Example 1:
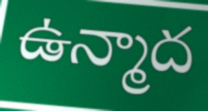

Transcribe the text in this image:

ఉన్మాద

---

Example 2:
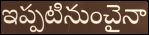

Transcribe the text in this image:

ఇప్పటినుంచైనా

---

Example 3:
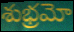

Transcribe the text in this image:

శుభ్రమో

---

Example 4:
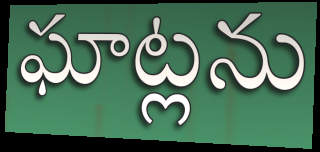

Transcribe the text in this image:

ఘాట్లను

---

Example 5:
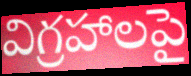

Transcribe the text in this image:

విగ్రహాలపై